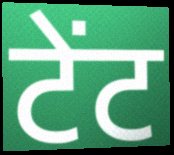
टेंट